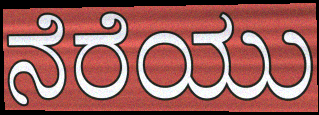
ನೆರೆಯು